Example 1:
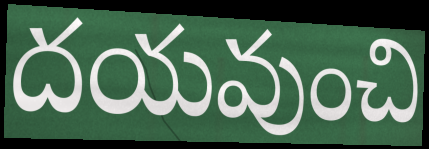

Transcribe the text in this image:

దయవుంచి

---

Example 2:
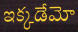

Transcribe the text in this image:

ఇక్కడేమో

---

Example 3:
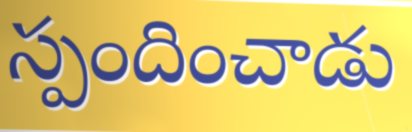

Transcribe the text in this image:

స్పందించాడు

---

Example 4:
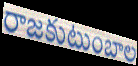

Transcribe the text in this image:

రాజకుటుంబాల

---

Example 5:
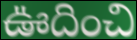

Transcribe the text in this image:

ఊదించి